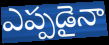
ఎప్పడైనా